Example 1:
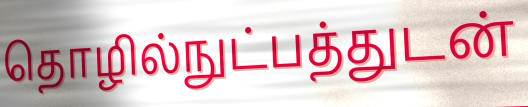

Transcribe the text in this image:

தொழில்நுட்பத்துடன்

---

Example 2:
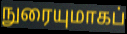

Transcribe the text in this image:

நுரையுமாகப்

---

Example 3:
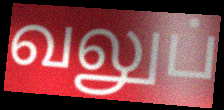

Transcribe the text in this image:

வலுப்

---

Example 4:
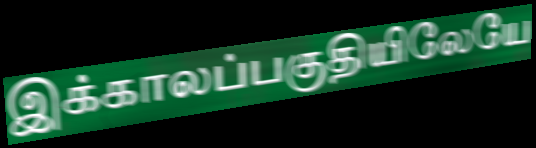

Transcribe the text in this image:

இக்காலப்பகுதியிலேயே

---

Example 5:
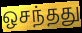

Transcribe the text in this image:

ஒசந்தது